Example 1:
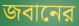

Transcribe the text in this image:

জবানের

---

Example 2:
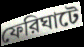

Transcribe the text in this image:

ফেরিঘাটে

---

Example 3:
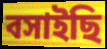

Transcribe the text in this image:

বসাইছি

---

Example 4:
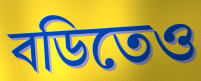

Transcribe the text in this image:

বডিতেও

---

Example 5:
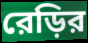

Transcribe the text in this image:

রেড়ির